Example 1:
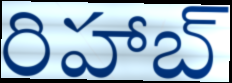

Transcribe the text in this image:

రిహాబ్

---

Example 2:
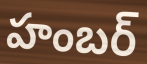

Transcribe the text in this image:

హంబర్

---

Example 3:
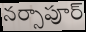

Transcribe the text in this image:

నర్సాపూర్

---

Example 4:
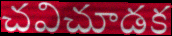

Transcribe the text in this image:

చవిచూడక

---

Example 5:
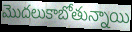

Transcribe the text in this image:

మొదలుకాబోతున్నాయి